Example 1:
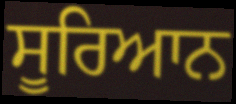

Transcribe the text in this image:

ਸੂਰਿਆਨ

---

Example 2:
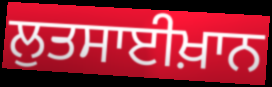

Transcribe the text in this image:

ਲੁਤਸਾਈਖ਼ਾਨ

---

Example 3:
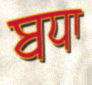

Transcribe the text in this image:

ਬਧਾ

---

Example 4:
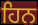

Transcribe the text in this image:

ਹਿਨ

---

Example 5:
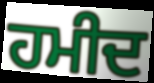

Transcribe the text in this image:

ਹਮੀਦ